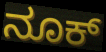
ನೂಕ್